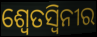
ଶ୍ୱେତସ୍ୱିନୀର